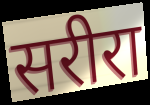
सरीरा